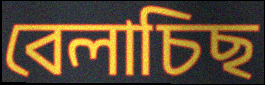
বেলাচিছ